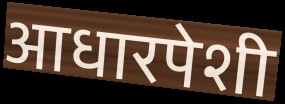
आधारपेशी